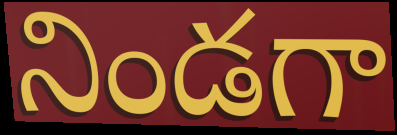
నిండగా